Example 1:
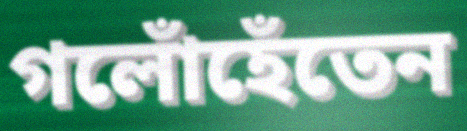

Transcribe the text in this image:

গলোঁহেঁতেন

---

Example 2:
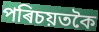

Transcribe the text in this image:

পৰিচয়তকৈ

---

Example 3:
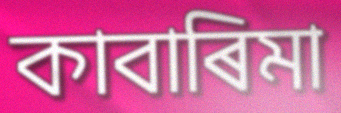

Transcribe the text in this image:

কাবাৰিমা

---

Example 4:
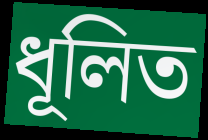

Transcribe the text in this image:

ধূলিত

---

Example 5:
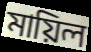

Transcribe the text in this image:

মায়িল